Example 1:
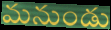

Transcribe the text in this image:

మనుండు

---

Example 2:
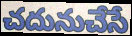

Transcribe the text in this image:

చదునుచేసే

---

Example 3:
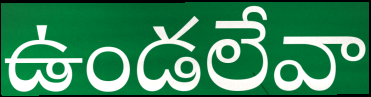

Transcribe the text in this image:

ఉండలేవా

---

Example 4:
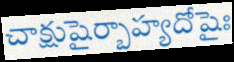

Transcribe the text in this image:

చాక్షుషైర్బాహ్యదోషైః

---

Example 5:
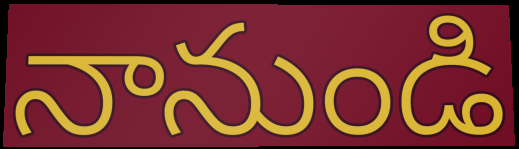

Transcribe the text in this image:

నానుండి